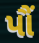
પૌં